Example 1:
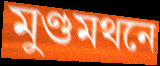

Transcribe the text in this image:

মুণ্ডমথনে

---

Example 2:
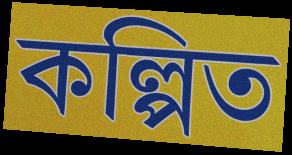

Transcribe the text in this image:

কল্পিত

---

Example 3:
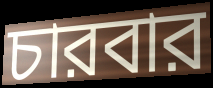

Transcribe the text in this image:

চারবার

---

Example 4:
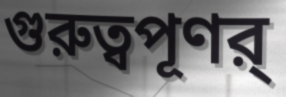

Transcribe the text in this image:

গুরুত্বপূণর্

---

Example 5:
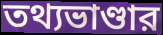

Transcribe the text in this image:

তথ্যভাণ্ডার